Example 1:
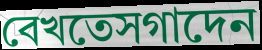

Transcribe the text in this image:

বেখতেসগাদেন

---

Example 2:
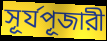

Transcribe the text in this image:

সূর্যপূজারী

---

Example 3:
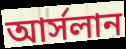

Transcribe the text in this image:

আর্সলান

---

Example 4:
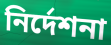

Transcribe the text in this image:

নির্দেশনা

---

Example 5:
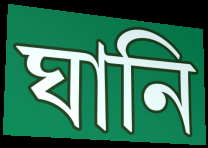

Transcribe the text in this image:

ঘানি